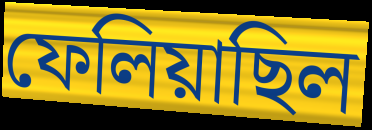
ফেলিয়াছিল